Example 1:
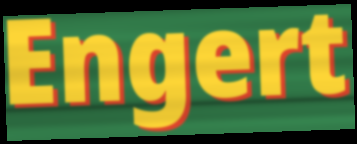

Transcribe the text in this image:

Engert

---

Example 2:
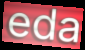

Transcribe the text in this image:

eda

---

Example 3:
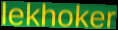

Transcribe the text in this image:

lekhoker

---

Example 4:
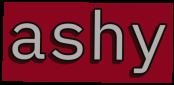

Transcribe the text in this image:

ashy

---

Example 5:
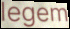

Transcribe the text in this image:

legem